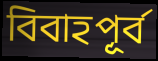
বিবাহপূর্ব